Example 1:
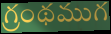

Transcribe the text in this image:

గ్రంథముగ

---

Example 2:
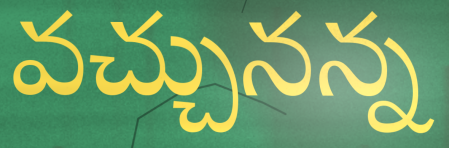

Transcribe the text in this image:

వచ్చునన్న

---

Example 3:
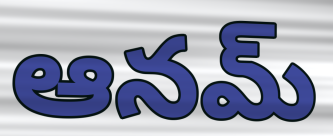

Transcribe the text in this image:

ఆనమ్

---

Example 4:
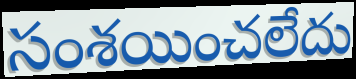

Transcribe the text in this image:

సంశయించలేదు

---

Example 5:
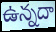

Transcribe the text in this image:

ఉన్నదా